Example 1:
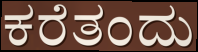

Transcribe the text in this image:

ಕರೆತಂದು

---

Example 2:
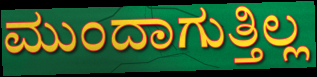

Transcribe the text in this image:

ಮುಂದಾಗುತ್ತಿಲ್ಲ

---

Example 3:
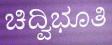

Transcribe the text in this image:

ಚಿದ್ವಿಭೂತಿ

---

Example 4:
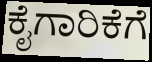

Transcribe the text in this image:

ಕೈಗಾರಿಕೆಗೆ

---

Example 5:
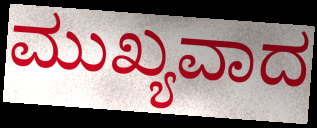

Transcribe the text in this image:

ಮುಖ್ಯವಾದ